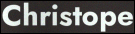
Christope